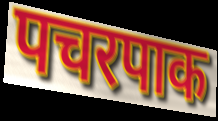
पचरपाक